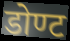
डोण्ट